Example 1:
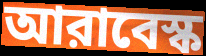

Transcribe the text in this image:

আরাবেস্ক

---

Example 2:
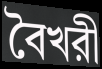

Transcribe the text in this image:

বৈখরী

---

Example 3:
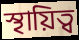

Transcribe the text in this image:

স্থায়িত্ব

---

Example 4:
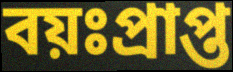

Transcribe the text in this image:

বয়ঃপ্রাপ্ত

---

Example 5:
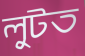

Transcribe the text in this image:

লুটত